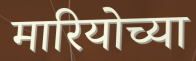
मारियोच्या